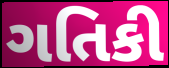
ગતિકી